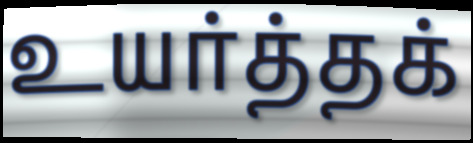
உயர்த்தக்